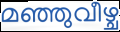
മഞ്ഞുവീഴ്ച